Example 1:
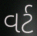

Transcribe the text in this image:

વર્ટ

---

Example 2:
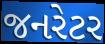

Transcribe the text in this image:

જનરેટર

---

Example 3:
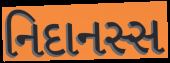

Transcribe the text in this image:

નિદાનસ્સ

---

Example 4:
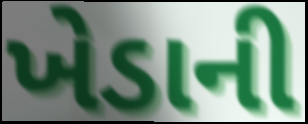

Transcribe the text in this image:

ખેડાની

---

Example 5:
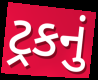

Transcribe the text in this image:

ટ્રકનું